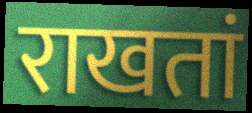
राखतां